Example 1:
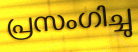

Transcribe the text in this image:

പ്രസംഗിച്ചു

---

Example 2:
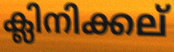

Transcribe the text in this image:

ക്ലിനിക്കല്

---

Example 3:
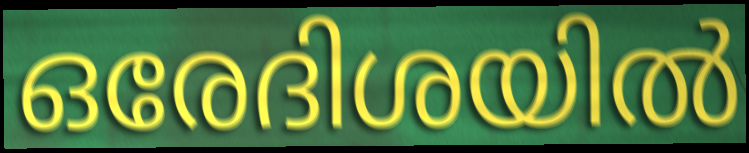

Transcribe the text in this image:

ഒരേദിശയിൽ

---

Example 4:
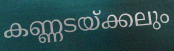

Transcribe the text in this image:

കണ്ണടയ്ക്കലും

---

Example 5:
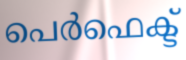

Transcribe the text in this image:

പെർഫെക്ട്